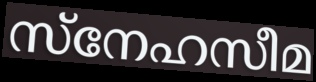
സ്നേഹസീമ